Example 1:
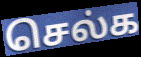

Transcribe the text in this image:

செல்க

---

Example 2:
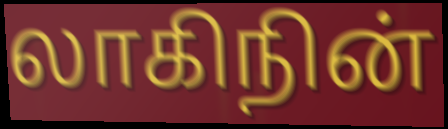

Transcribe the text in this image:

லாகிநின்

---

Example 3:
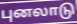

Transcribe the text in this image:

புனலாடு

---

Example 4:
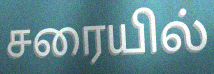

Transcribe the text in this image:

சரையில்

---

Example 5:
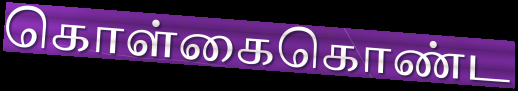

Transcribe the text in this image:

கொள்கைகொண்ட